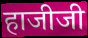
हाजीजी